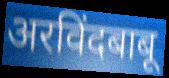
अरविंदबाबू